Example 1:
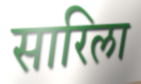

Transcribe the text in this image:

सारिला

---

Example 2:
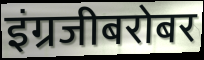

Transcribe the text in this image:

इंग्रजीबरोबर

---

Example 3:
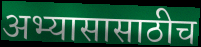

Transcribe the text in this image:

अभ्यासासाठीच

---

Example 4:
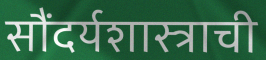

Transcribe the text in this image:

सौंदर्यशास्त्राची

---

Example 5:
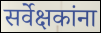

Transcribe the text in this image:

सर्वेक्षकांना